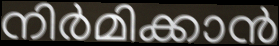
നിർമിക്കാൻ